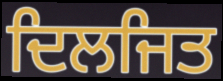
ਦਿਲਜਿਤ